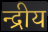
न्द्रीय